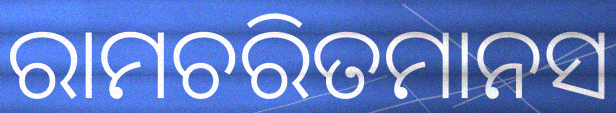
ରାମଚରିତମାନସ